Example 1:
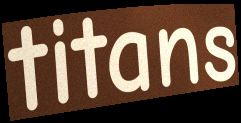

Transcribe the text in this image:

titans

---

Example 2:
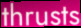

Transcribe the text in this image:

thrusts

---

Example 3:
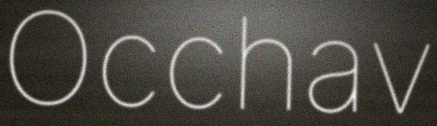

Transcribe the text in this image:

Occhav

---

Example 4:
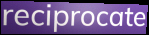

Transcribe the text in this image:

reciprocate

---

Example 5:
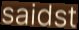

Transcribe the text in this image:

saidst